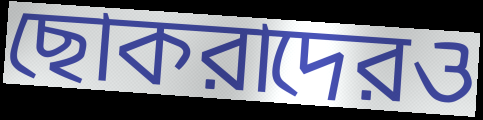
ছোকরাদেরও